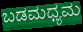
ಬಡಮಧ್ಯಮ